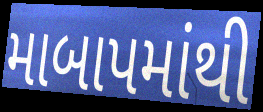
માબાપમાંથી